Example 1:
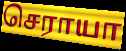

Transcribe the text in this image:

செராயா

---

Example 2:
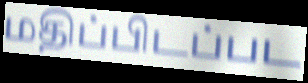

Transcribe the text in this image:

மதிப்பிடப்பட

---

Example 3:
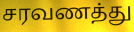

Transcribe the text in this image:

சரவணத்து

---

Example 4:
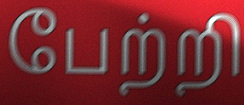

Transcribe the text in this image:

பேற்றி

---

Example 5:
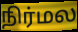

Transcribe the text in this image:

நிர்மல